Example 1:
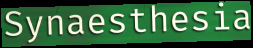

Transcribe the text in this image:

Synaesthesia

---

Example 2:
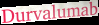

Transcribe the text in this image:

Durvalumab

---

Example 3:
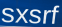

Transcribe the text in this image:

sxsrf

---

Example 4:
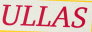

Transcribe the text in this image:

ULLAS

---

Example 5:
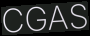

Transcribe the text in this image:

CGAS